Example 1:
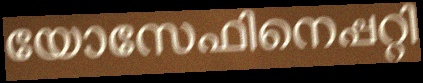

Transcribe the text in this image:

യോസേഫിനെപ്പറ്റി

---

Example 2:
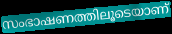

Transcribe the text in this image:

സംഭാഷണത്തിലൂടെയാണ്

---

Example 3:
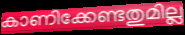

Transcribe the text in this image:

കാണിക്കേണ്ടതുമില്ല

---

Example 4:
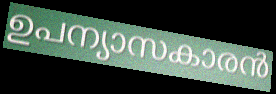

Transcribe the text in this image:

ഉപന്യാസകാരൻ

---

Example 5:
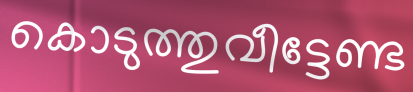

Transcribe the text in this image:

കൊടുത്തുവീട്ടേണ്ട